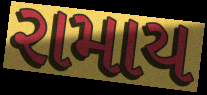
રામાય